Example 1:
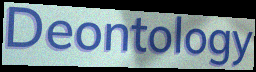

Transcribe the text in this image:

Deontology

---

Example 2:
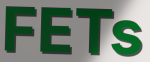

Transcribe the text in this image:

FETs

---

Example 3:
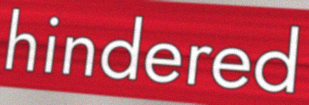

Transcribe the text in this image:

hindered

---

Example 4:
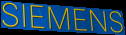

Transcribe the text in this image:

SIEMENS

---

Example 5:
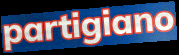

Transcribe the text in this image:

partigiano